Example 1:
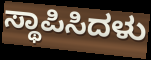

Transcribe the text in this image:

ಸ್ಥಾಪಿಸಿದಳು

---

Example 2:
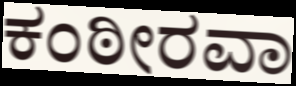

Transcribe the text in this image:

ಕಂಠೀರವಾ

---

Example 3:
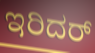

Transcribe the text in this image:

ಇರಿದರ್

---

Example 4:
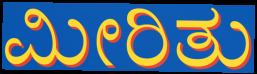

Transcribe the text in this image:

ಮೀರಿತು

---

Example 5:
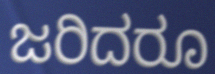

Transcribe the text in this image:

ಜರಿದರೂ